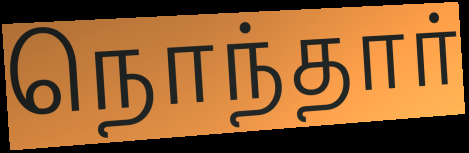
நொந்தார்